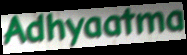
Adhyaatma